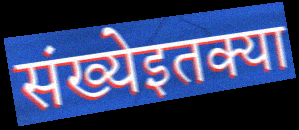
संख्येइतक्या